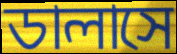
ডালাসে